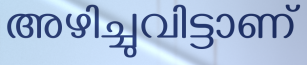
അഴിച്ചുവിട്ടാണ്